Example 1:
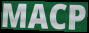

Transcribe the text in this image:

MACP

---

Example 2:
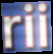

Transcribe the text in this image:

rii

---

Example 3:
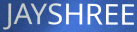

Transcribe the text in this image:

JAYSHREE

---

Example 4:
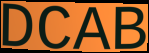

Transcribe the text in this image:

DCAB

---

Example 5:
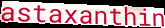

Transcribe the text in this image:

astaxanthin